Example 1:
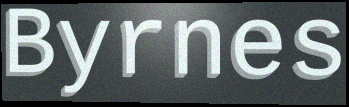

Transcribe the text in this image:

Byrnes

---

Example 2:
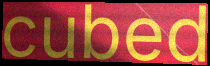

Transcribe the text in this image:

cubed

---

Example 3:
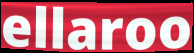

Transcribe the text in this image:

ellaroo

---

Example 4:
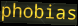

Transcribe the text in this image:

phobias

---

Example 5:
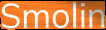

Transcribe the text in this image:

Smolin